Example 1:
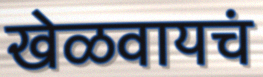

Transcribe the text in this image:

खेळवायचं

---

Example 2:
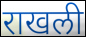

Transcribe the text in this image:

राखली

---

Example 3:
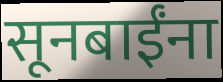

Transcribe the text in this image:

सूनबाईंना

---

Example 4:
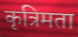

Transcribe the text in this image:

कृत्रिमता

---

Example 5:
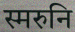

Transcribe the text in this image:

स्मरुनि